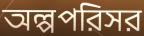
অল্পপরিসর